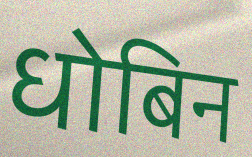
धोबिन